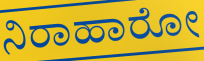
ನಿರಾಹಾರೋ